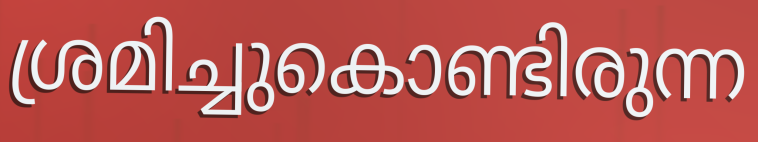
ശ്രമിച്ചുകൊണ്ടിരുന്ന